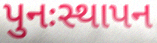
પુનઃસ્થાપન